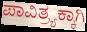
ಪಾವಿತ್ರ್ಯಕ್ಕಾಗಿ